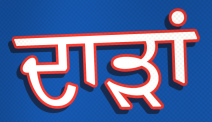
ਦਾੜਾਂ